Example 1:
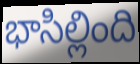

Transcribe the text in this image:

భాసిల్లింది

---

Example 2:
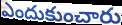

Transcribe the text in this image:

ఎందుకుంచారు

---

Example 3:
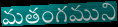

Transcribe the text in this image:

మతంగముని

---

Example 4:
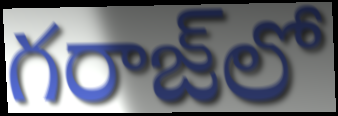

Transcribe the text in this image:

గరాజ్‌లో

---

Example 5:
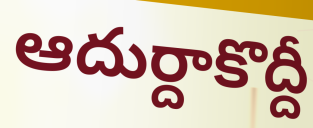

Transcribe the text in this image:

ఆదుర్దాకొద్దీ